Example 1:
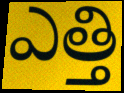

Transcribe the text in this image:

ఎత్తి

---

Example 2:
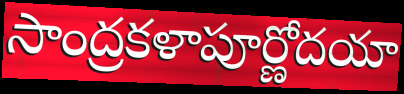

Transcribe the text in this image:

సాంద్రకళాపూర్ణోదయా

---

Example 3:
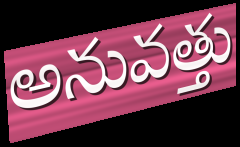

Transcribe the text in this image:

అనువత్తు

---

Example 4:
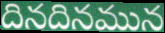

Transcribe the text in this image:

దినదినమున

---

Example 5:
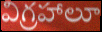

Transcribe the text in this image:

విగ్రహాలూ